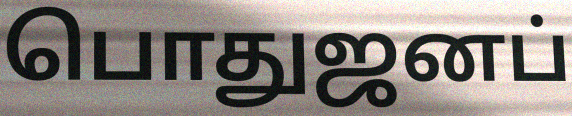
பொதுஜனப்